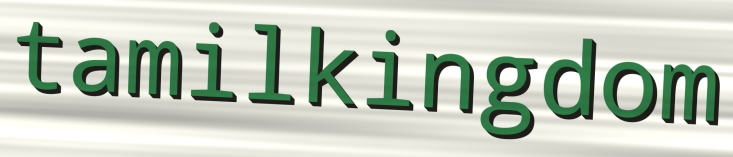
tamilkingdom